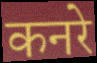
कनरे